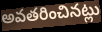
అవతరించినట్లు